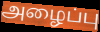
அழைப்பு